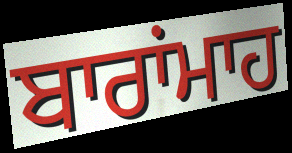
ਬਾਰਾਂਮਾਹ